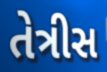
તેત્રીસ